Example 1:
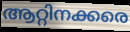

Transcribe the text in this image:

ആറ്റിനക്കരെ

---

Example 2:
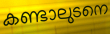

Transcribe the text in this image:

കണ്ടാലുടനെ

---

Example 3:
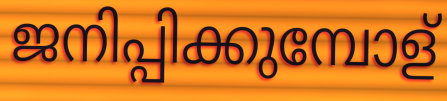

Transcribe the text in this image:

ജനിപ്പിക്കുമ്പോള്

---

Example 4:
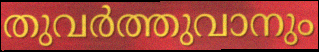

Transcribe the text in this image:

തുവർത്തുവാനും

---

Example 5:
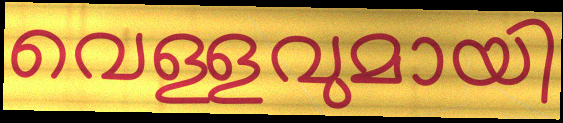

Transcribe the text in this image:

വെള്ളവുമായി